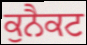
ਕੁਨੈਕਟ